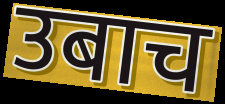
उबाच